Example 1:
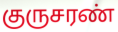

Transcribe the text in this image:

குருசரண்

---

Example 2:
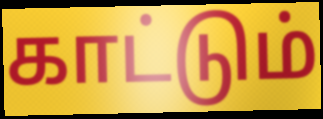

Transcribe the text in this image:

காட்டும்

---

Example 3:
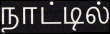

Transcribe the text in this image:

நாட்டில்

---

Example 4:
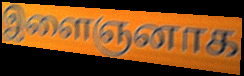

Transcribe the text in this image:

இளைஞனாக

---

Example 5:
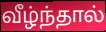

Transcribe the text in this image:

வீழ்ந்தால்